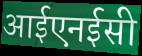
आईएनईसी